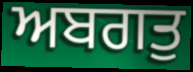
ਅਬਗਤੁ